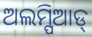
ଅଲମ୍ପିଆଡ୍